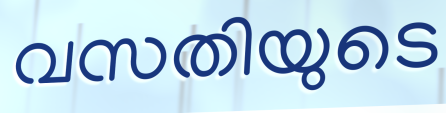
വസതിയുടെ